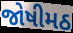
જોષીમઠ